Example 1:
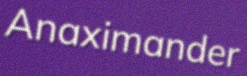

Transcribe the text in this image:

Anaximander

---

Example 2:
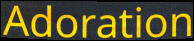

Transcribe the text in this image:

Adoration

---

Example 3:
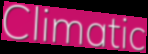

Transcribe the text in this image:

Climatic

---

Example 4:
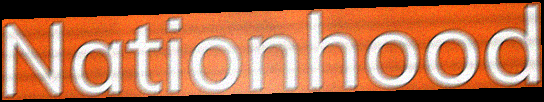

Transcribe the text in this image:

Nationhood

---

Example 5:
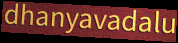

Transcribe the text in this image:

dhanyavadalu